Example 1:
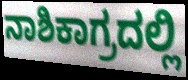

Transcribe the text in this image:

ನಾಶಿಕಾಗ್ರದಲ್ಲಿ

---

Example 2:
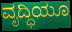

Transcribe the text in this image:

ವೃದ್ಧಿಯೂ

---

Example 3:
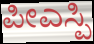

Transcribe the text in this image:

ಪೀಎಸ್ಪಿ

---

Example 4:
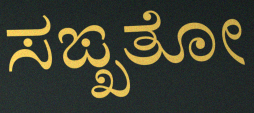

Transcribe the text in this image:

ಸಙ್ಖತೋ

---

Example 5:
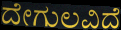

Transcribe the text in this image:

ದೇಗುಲವಿದೆ